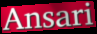
Ansari